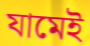
যামেই